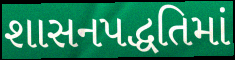
શાસનપદ્ધતિમાં